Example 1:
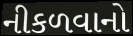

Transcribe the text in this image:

નીકળવાનો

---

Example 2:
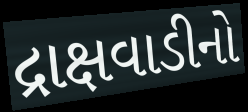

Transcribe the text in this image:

દ્રાક્ષવાડીનો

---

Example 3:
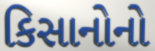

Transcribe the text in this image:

કિસાનોનો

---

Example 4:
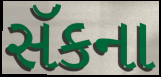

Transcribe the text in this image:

સૅકના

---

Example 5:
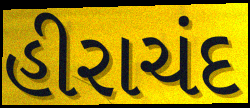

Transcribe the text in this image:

હીરાચંદ